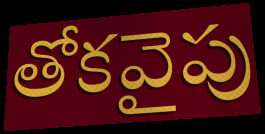
తోకవైపు